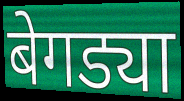
बेगड्या